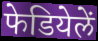
फेडियेलें